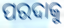
ପରଦାକୁ